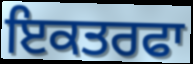
ਇਕਤਰਫਾ